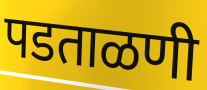
पडताळणी